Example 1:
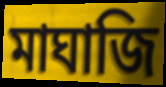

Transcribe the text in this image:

মাঘাজি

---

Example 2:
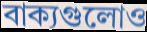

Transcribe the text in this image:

বাক্যগুলোও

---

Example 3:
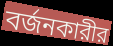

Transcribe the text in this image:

বর্জনকারীর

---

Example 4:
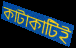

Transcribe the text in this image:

কাটাকাটিই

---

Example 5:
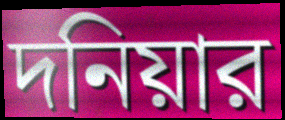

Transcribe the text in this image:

দনিয়ার